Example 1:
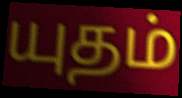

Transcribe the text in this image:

யுதம்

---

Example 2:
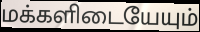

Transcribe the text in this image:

மக்களிடையேயும்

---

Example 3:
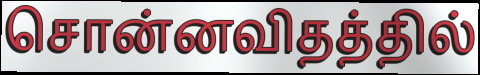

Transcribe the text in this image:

சொன்னவிதத்தில்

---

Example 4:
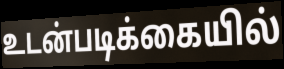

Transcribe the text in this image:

உடன்படிக்கையில்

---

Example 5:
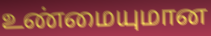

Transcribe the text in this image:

உண்மையுமான